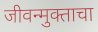
जीवन्मुक्ताचा